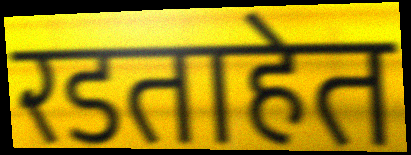
रडताहेत